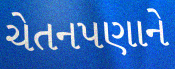
ચેતનપણાને